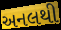
અનલથી